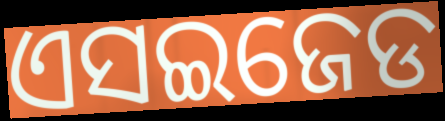
ଏସଇଜେଡ